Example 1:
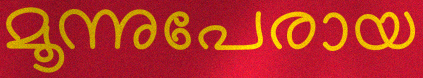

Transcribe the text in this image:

മൂന്നുപേരായ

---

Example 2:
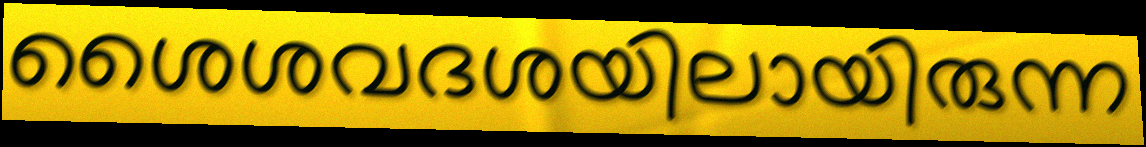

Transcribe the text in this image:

ശൈശവദശയിലായിരുന്ന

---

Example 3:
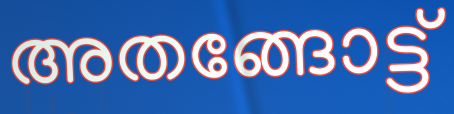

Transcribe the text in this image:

അതങ്ങോട്ട്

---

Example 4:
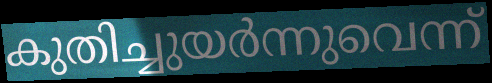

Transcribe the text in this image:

കുതിച്ചുയർന്നുവെന്ന്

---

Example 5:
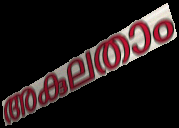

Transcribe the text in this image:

അകുലതാം